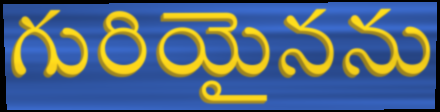
గురియైనను